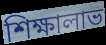
শিক্ষালাভ